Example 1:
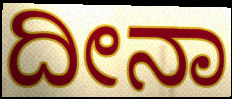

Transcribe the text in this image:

ದೀನಾ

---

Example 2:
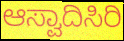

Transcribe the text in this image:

ಆಸ್ವಾದಿಸಿರಿ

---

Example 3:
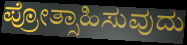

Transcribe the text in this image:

ಪ್ರೋತ್ಸಾಹಿಸುವುದು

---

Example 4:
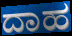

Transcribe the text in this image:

ದಾಹ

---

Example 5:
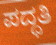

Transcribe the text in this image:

ಪದ್ಧತಿ